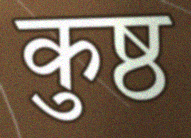
कुष्ठ